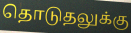
தொடுதலுக்கு